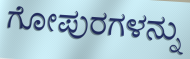
ಗೋಪುರಗಳನ್ನು